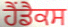
ਹੈਂਡੈਕਸ